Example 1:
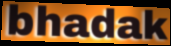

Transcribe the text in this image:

bhadak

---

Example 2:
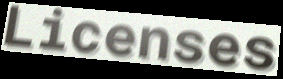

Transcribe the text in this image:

Licenses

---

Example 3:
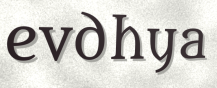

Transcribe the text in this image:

evdhya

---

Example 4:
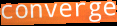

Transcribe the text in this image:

converge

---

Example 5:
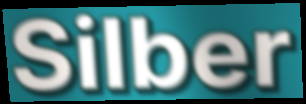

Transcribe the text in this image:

Silber